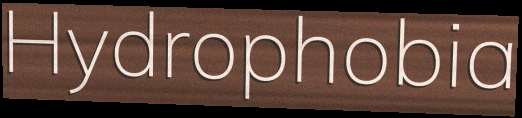
Hydrophobia